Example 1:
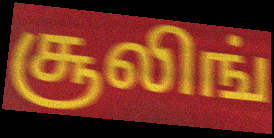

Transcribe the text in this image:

சூலிங்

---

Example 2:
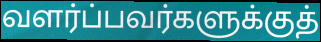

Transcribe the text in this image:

வளர்ப்பவர்களுக்குத்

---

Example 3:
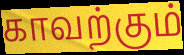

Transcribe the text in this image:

காவற்கும்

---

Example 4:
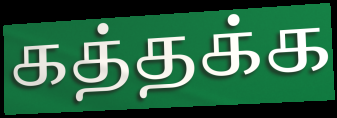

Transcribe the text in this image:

கத்தக்க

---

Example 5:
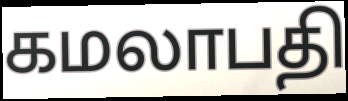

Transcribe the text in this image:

கமலாபதி